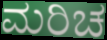
ಮರಿಚ